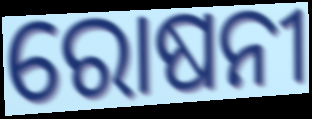
ରୋଷନୀ